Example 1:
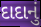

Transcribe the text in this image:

દાદાનું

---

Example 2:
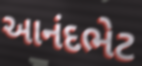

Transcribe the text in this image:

આનંદભેટ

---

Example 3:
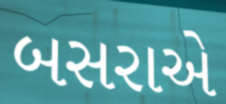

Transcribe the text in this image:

બસરાએ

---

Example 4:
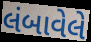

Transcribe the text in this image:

લંબાવેલે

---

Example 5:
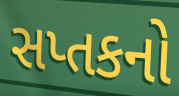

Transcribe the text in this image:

સપ્તકનો